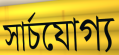
সার্চযোগ্য